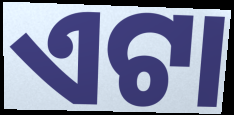
ଏଟା